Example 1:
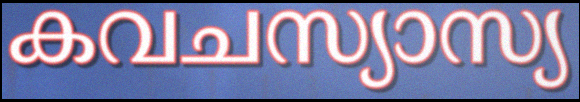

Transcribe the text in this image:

കവചസ്യാസ്യ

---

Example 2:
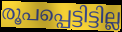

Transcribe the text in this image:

രൂപപ്പെട്ടിട്ടില്ല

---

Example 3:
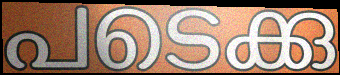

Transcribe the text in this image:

പടെക്കു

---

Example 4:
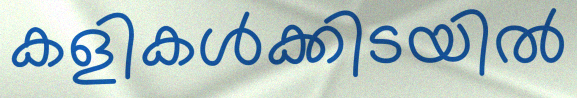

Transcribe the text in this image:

കളികൾക്കിടയിൽ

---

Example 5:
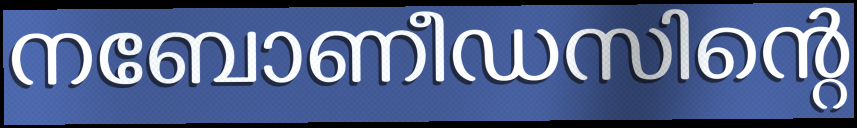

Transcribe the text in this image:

നബോണീഡസിന്റെ